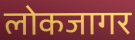
लोकजागर